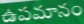
ఉపమానం